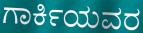
ಗಾರ್ಕಿಯವರ